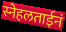
स्नेहलताईनं